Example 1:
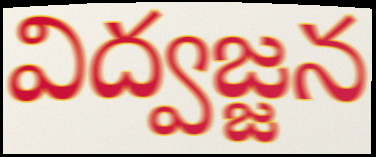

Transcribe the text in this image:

విద్వజ్జన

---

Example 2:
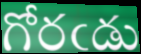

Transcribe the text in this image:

గోరఁడు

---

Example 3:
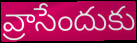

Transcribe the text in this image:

వ్రాసేందుకు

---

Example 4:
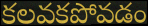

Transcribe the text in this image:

కలవకపోవడం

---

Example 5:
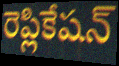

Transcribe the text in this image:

రెప్లికేషన్